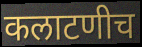
कलाटणीच